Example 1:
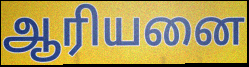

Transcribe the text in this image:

ஆரியனை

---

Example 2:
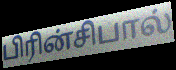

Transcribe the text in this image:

பிரின்சிபால்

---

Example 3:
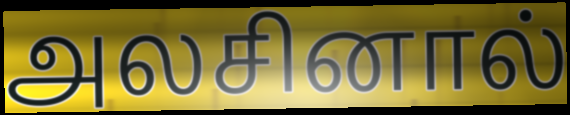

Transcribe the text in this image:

அலசினால்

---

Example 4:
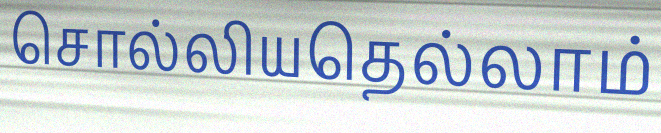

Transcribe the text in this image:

சொல்லியதெல்லாம்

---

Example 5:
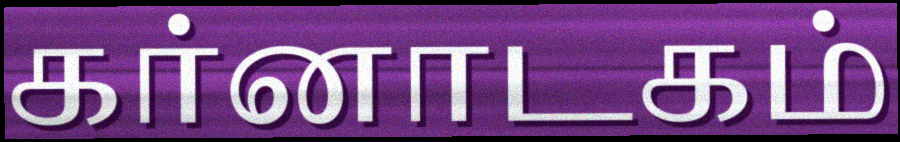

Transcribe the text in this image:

கர்னாடகம்